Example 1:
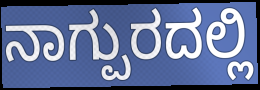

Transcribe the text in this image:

ನಾಗ್ಪುರದಲ್ಲಿ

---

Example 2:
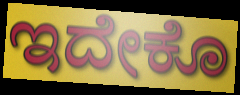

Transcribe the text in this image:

ಇದೇಕೊ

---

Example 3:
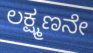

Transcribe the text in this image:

ಲಕ್ಷ್ಮಣನೇ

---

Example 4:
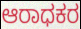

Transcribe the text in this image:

ಆರಾಧಕರ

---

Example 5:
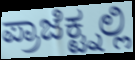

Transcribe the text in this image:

ಪ್ರಾಜೆಕ್ಟ್ನಲ್ಲಿ